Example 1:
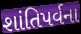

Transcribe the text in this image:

શાંતિપર્વના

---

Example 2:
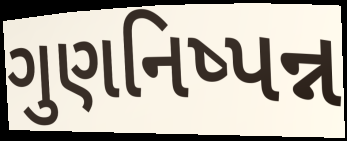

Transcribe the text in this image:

ગુણનિષ્પન્ન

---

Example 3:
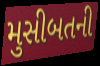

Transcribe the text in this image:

મુસીબતની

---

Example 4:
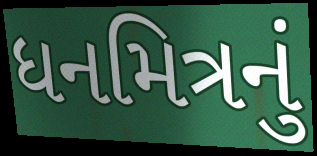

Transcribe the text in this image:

ધનમિત્રનું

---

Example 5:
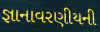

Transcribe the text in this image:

જ્ઞાનાવરણીયની